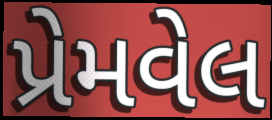
પ્રેમવેલ